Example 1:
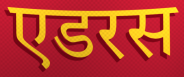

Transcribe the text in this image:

एडरस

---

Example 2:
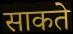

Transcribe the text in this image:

साकते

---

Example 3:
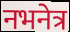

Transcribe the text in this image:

नभनेत्र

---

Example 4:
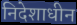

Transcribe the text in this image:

निदेशाधीन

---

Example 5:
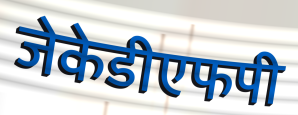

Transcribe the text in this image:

जेकेडीएफपी